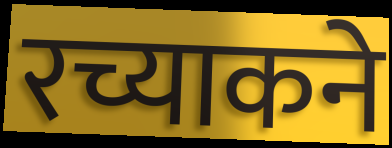
रच्याकने